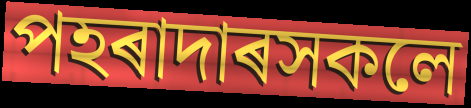
পহৰাদাৰসকলে